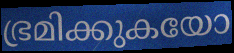
ഭ്രമിക്കുകയോ